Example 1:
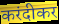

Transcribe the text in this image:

करंदीकर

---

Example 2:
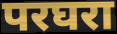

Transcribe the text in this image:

परघरा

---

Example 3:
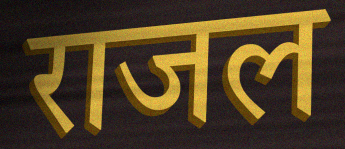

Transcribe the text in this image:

राजल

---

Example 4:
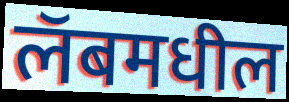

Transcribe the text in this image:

लॅबमधील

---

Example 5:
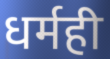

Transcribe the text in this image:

धर्मही